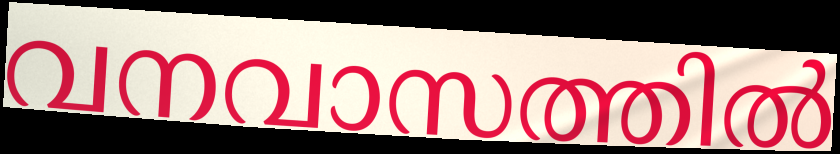
വനവാസത്തിൽ